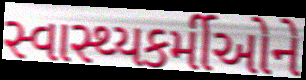
સ્વાસ્થ્યકર્મીઓને